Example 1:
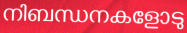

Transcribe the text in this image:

നിബന്ധനകളോടു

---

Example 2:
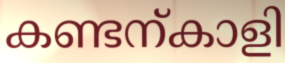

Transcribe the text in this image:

കണ്ടന്കാളി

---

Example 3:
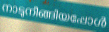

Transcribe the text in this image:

നാടുനീങ്ങിയപ്പോൾ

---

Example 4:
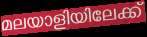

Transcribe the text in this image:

മലയാളിയിലേക്ക്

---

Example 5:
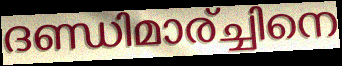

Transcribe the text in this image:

ദണ്ഡിമാര്ച്ചിനെ